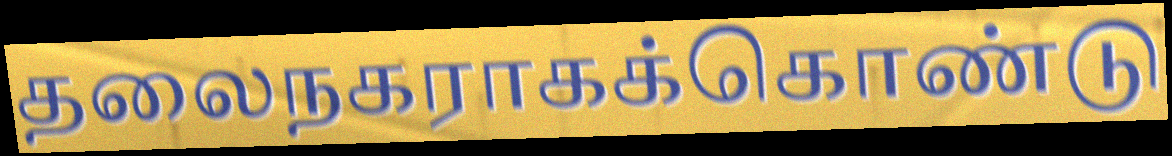
தலைநகராகக்கொண்டு